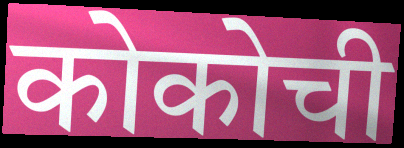
कोकोची